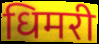
धिमरी